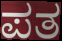
ಪತ